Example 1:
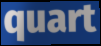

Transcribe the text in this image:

quart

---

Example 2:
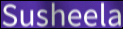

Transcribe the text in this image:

Susheela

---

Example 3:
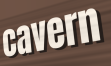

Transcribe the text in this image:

cavern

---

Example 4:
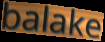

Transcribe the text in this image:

balake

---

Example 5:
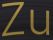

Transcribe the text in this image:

Zu